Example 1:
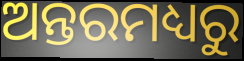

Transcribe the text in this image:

ଅନ୍ତରମଧ୍ୟରୁ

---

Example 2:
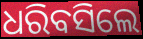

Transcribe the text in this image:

ଧରିବସିଲେ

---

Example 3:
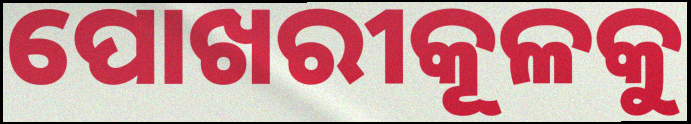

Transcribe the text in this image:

ପୋଖରୀକୂଳକୁ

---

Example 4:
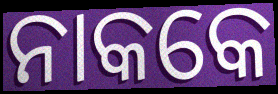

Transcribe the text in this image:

ନାକକେ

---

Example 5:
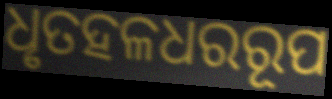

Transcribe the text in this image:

ଧୃତହଳଧରରୂପ